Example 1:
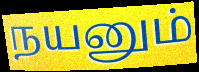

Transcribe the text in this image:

நயனும்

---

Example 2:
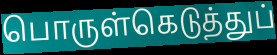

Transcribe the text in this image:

பொருள்கெடுத்துப்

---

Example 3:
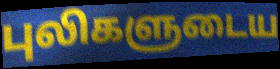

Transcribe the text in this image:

புலிகளுடைய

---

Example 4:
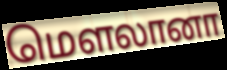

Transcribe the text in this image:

மௌலானா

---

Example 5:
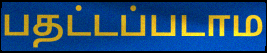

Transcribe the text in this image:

பதட்டப்படாம